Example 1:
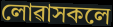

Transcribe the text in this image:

লোৱাসকলে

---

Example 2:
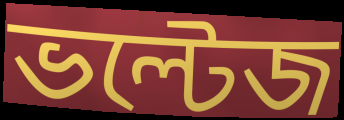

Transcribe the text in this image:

ভল্টেজ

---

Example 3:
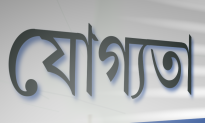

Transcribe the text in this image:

যোগ্য়তা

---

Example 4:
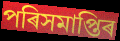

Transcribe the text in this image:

পৰিসমাপ্তিৰ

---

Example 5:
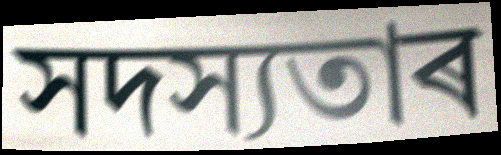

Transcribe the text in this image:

সদস্যতাৰ